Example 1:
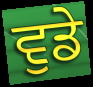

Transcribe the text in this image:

ਵੁਡੇ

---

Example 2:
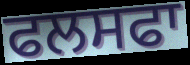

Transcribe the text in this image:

ਫਲਸਫਾ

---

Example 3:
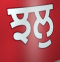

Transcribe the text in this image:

ਝਲੁ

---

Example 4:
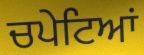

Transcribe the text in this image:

ਚਪੇਟਿਆਂ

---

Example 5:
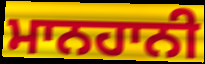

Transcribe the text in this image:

ਮਾਨਹਾਨੀ